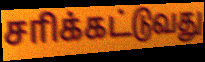
சரிக்கட்டுவது